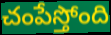
చంపేస్తోంది